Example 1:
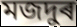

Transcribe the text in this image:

মজদুৰ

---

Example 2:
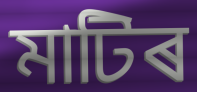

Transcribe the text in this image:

মাটিৰ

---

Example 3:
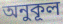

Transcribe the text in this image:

অনুকূল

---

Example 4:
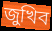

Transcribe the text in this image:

জুখিব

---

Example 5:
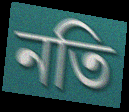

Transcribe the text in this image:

নতি